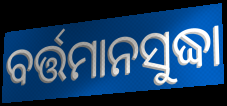
ବର୍ତ୍ତମାନସୁଦ୍ଧା